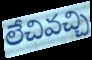
లేచివచ్చి